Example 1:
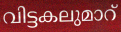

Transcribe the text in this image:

വിട്ടകലുമാറ്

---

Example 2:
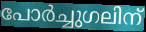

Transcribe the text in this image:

പോർച്ചുഗലിന്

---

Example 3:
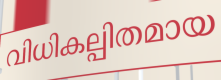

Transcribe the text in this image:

വിധികല്പിതമായ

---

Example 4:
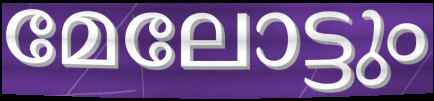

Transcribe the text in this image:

മേലോട്ടും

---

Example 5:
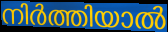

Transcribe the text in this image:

നിർത്തിയാൽ